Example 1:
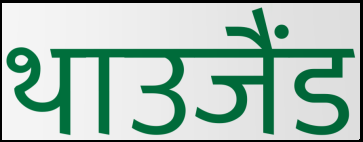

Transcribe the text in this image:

थाउजैंड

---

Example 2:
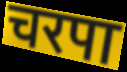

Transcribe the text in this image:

चरपा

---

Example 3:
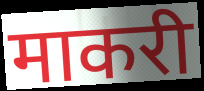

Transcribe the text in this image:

माकरी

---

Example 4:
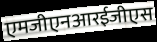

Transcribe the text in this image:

एमजीएनआरईजीएस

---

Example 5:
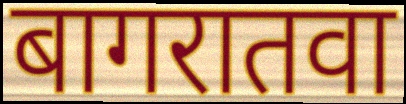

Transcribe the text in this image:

बागरातवा